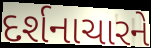
દર્શનાચારને